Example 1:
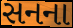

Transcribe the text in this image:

સનના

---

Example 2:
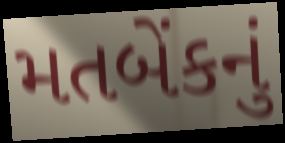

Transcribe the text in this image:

મતબેંકનું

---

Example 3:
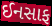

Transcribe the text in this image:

ઈનસાફ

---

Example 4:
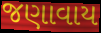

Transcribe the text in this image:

જણાવાય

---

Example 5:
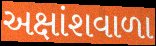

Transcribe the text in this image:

અક્ષાંશવાળા